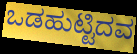
ಒಡಹುಟ್ಟಿದವ